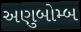
અણુબોમ્બ